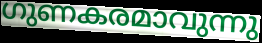
ഗുണകരമാവുന്നു